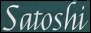
Satoshi